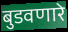
बुडवणारे